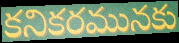
కనికరమునకు